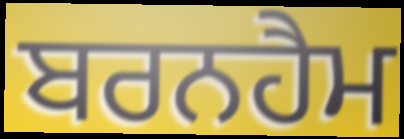
ਬਰਨਹੈਮ